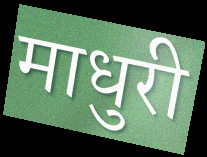
माधुरी